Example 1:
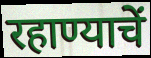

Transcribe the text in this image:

रहाण्याचें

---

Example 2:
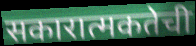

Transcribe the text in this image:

सकारात्मकतेची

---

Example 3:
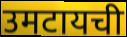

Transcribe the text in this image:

उमटायची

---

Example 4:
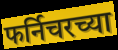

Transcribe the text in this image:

फर्निचरच्या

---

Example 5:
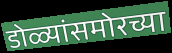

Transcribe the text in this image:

डोळ्यांसमोरच्या